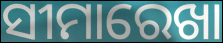
ସୀମାରେଖା